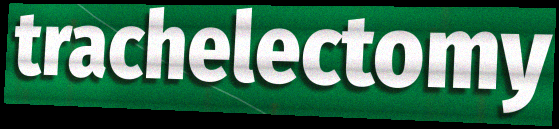
trachelectomy